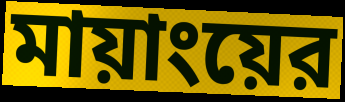
মায়াংয়ের